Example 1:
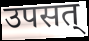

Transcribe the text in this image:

उपसत्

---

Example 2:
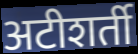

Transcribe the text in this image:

अटीशर्ती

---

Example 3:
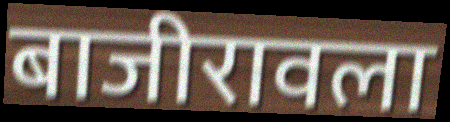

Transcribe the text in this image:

बाजीरावला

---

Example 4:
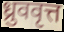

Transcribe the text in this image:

ध्रुववृत्त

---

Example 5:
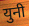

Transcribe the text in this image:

युनी